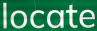
locate